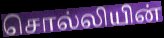
சொல்லியின்